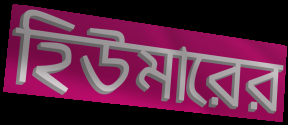
হিউমারের